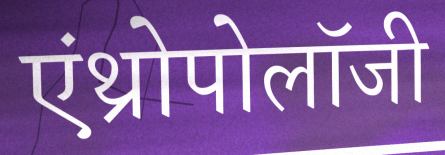
एंथ्रोपोलॉजी